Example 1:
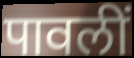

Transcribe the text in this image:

पावलीं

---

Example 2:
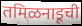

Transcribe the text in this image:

तमिळनाडूची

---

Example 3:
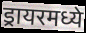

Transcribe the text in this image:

ड्रायरमध्ये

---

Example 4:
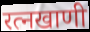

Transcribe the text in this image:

रत्नखाणी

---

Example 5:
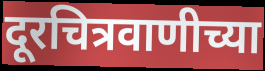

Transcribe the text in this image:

दूरचित्रवाणीच्या